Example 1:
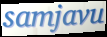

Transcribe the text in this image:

samjavu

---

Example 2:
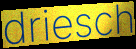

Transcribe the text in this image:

driesch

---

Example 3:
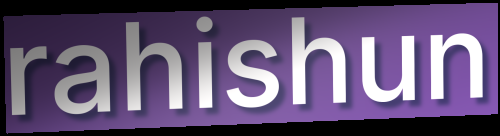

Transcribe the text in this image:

rahishun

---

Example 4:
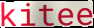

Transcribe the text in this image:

kitee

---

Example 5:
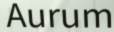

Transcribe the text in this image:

Aurum